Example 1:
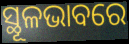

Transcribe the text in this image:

ସ୍ଥୂଳଭାବରେ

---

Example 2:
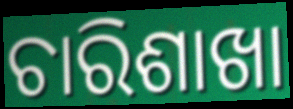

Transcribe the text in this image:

ଚାରିଶାଖା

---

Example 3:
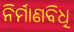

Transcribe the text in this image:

ନିର୍ମାଣବିଧି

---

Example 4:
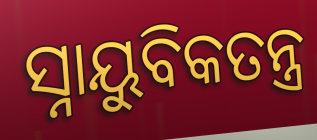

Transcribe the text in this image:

ସ୍ନାୟୁବିକତନ୍ତ୍ର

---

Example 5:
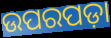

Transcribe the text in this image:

ଉପରପଡ଼ା